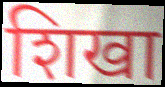
शिखा